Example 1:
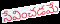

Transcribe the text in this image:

సేవించడమే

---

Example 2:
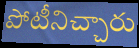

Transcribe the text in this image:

పోటీనిచ్చారు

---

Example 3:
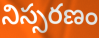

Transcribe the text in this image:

నిస్సరణం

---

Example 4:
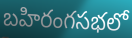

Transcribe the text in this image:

బహిరంగసభలో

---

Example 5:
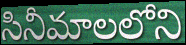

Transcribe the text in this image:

సినీమాలలోని